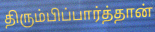
திரும்பிப்பார்த்தான்